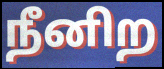
நீனிற